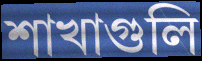
শাখাগুলি